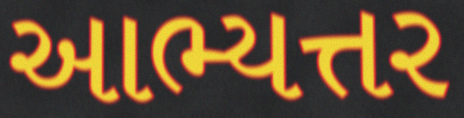
આભ્યત્તર